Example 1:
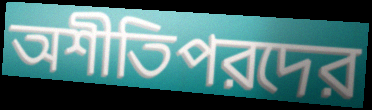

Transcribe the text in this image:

অশীতিপরদের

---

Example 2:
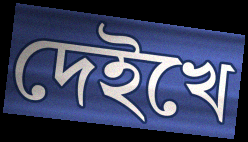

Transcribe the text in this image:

দেইখে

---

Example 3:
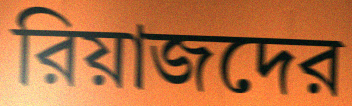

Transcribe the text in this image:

রিয়াজদের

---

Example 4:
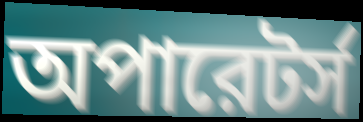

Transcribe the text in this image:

অপারেটর্স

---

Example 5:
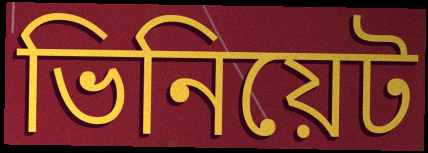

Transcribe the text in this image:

ভিনিয়েট